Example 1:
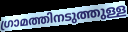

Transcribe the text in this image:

ഗ്രാമത്തിനടുത്തുള്ള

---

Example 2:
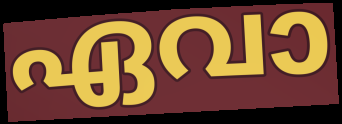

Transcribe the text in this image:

ഏവാ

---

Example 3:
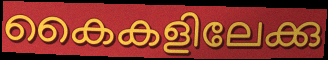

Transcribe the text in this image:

കൈകളിലേക്കു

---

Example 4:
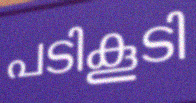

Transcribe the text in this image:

പടികൂടി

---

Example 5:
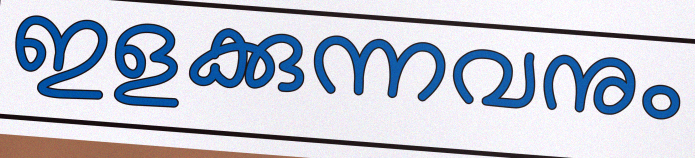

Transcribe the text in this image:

ഇളക്കുന്നവനും